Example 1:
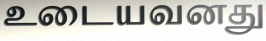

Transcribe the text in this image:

உடையவனது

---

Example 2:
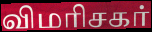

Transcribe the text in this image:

விமரிசகர்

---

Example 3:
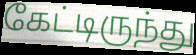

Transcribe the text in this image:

கேட்டிருந்து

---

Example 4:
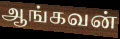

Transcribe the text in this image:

ஆங்கவன்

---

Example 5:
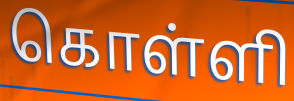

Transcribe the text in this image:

கொள்ளி